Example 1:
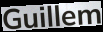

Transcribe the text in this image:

Guillem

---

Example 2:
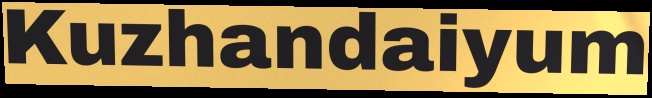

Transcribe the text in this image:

Kuzhandaiyum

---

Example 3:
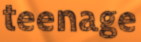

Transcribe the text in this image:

teenage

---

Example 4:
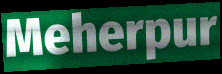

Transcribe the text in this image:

Meherpur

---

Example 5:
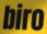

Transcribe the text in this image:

biro